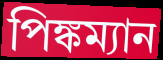
পিঙ্কম্যান